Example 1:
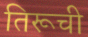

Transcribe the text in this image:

तिरूची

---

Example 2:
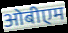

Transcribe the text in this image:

ओबीएम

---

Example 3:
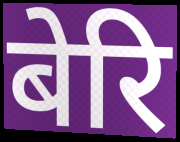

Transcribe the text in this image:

बेरि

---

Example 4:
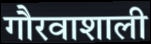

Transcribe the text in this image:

गौरवाशाली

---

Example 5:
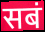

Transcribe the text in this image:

सबं